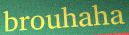
brouhaha